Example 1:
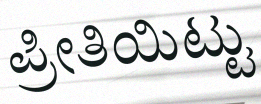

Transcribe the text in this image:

ಪ್ರೀತಿಯಿಟ್ಟು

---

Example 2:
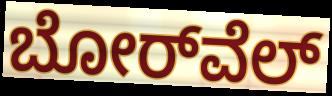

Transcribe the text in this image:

ಬೋರ್‌ವೆಲ್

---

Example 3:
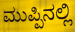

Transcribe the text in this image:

ಮುಪ್ಪಿನಲ್ಲಿ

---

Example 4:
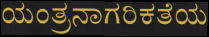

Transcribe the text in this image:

ಯಂತ್ರನಾಗರಿಕತೆಯ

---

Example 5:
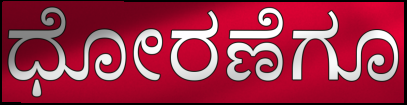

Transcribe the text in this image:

ಧೋರಣೆಗೂ